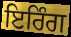
ਇਰਿੰਗ